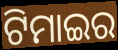
ଟିମାଇର